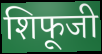
शिफूजी